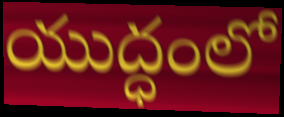
యుద్ధంలో